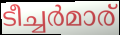
ടീച്ചർമാര്